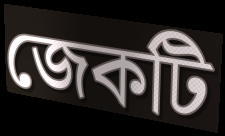
জেকটি